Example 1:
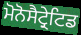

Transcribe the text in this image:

ਮੋਨੋਸੈਟ੍ਰੇਟਿਡ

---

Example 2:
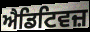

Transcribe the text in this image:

ਐਡਿਟਿਵਜ਼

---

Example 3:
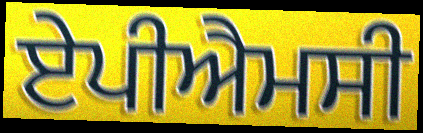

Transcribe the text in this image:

ਏਪੀਐਮਸੀ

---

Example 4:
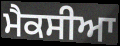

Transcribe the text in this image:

ਮੈਕਸੀਆ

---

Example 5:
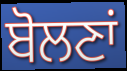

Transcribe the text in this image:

ਬੋਲਣਾਂ